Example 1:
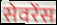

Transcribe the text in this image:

सेवरेंस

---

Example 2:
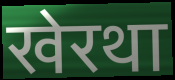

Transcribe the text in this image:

खेरथा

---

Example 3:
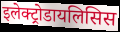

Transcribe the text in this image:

इलेक्ट्रोडायलिसिस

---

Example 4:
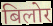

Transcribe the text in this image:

बिलोर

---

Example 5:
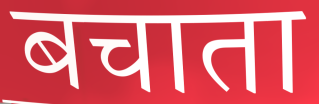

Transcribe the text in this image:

बचाता